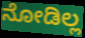
ನೋಡಿಲ್ಲ